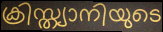
ക്രിസ്ത്യാനിയുടെ